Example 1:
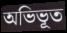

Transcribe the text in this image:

অভিভূত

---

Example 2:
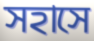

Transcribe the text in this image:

সহাসে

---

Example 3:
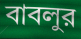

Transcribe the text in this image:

বাবলুর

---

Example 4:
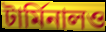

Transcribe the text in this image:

টার্মিনালও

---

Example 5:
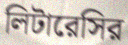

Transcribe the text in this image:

লিটারেসির